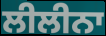
ਲੀਲੀਨਾ